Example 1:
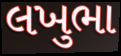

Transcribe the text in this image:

લખુભા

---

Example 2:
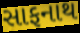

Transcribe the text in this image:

સાફનાથ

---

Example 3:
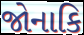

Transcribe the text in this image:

જોનાકિ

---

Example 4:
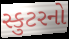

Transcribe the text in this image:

સ્કુટરનો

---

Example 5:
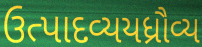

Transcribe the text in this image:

ઉત્પાદવ્યયધ્રૌવ્ય